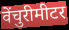
वेंचुरीमीटर